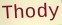
Thody